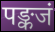
पङ्कजं